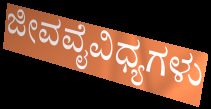
ಜೀವವೈವಿಧ್ಯಗಳು